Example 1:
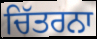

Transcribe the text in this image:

ਚਿੱਤਰਨਾ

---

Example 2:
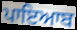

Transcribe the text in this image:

ਪਾਇਆਬ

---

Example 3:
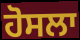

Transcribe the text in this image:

ਹੋਸਲਾ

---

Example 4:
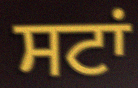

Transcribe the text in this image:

ਸਟਾਂ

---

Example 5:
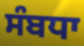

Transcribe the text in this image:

ਸੰਬਧਾ